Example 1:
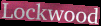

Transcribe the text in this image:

Lockwood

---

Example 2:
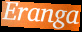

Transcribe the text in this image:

Eranga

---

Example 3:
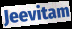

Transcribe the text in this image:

Jeevitam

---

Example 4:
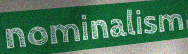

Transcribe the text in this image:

nominalism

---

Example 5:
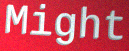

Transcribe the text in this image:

Might